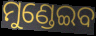
ମୁଣ୍ଡେଇବ